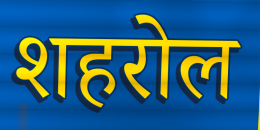
शहरोल